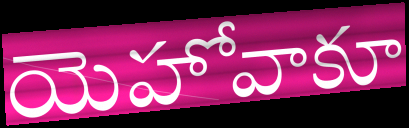
యెహోవాకూ